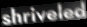
shriveled